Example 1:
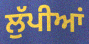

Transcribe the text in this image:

ਲੁੱਪੀਆਂ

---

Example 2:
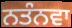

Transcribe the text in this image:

ਨਤੰਨਵਾ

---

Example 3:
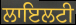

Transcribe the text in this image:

ਲਾਇਲਟੀ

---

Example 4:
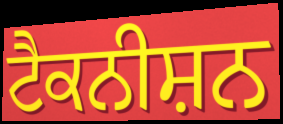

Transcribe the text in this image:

ਟੈਕਨੀਸ਼ਨ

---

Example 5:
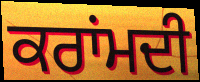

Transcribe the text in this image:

ਕਰਾਂਮਦੀ